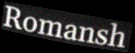
Romansh